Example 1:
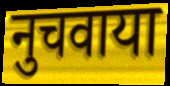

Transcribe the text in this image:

नुचवाया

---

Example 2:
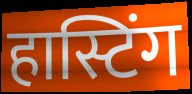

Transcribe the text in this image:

हास्टिंग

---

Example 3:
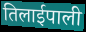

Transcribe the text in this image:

तिलाईपाली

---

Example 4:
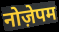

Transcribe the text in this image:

नोज़ेपम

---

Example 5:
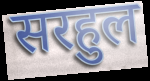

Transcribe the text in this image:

सरहुल